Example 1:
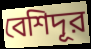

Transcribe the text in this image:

বেশিদূর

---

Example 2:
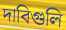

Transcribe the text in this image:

দাবিগুলি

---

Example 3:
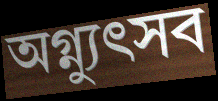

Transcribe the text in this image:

অগ্ন্যুৎসব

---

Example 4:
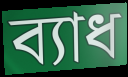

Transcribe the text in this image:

ব্যাধ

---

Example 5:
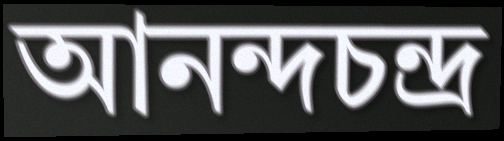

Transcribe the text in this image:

আনন্দচন্দ্র